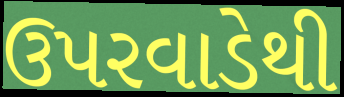
ઉપરવાડેથી